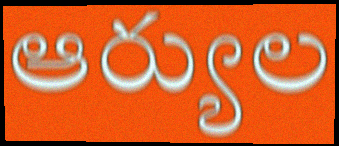
ఆర్యుల